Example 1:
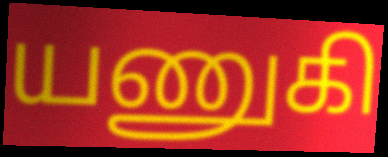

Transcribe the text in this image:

யணுகி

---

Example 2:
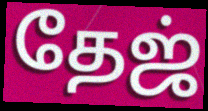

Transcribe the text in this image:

தேஜ்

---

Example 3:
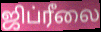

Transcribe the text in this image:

ஜிப்ரீலை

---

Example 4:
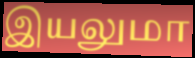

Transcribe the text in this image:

இயலுமா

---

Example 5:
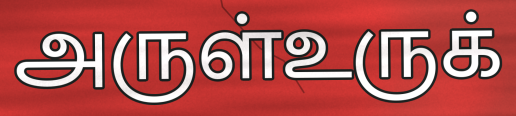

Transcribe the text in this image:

அருள்உருக்